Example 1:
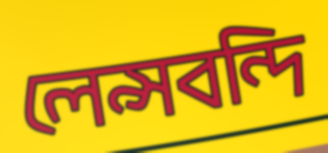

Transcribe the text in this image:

লেন্সবন্দি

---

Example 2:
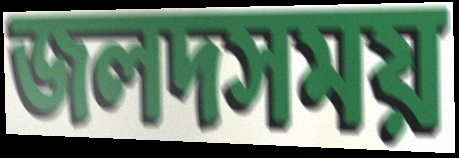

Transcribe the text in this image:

জলদসময়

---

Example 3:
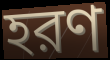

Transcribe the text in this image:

হরণ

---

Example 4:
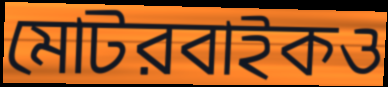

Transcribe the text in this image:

মোটরবাইকও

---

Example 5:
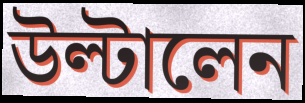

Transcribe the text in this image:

উল্টালেন